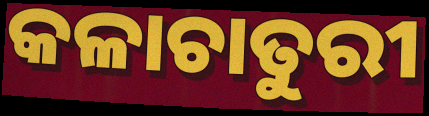
କଳାଚାତୁରୀ